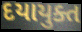
દયાયુક્ત